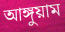
আঙ্গুয়াম